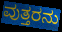
ವುತ್ತರನು